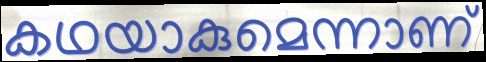
കഥയാകുമെന്നാണ്